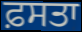
ਫ਼ਸਤਾ